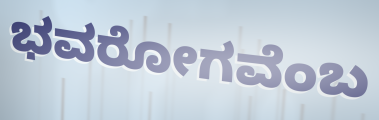
ಭವರೋಗವೆಂಬ